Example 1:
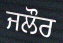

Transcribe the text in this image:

ਜਲੌਰ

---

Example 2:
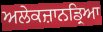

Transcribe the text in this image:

ਅਲੇਕਜ਼ਾਨਡ੍ਰਿਆ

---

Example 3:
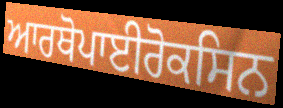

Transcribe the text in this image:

ਆਰਥੋਪਾਈਰੋਕਸਿਨ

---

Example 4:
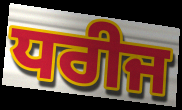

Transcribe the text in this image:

ਧਰੀਜ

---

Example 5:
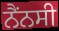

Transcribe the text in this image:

ਨੈਂਨਸੀ